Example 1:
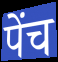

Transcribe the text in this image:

पेंच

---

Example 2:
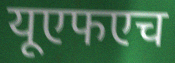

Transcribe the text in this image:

यूएफएच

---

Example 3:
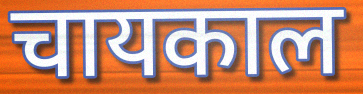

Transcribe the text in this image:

चायकाल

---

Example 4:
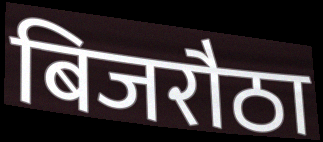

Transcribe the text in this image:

बिजरौठा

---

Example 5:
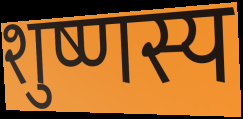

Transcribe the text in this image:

शुष्णस्य